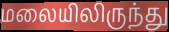
மலையிலிருந்து